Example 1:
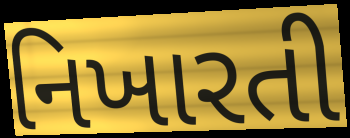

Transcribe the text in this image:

નિખારતી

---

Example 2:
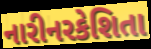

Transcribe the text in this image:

નારીનરકેશિતા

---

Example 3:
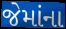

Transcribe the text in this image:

જેમાંના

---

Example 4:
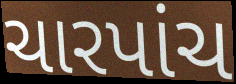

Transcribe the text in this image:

ચારપાંચ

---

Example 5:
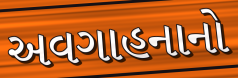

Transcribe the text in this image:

અવગાહનાનો